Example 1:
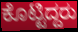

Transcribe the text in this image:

ಕೊಟ್ಟಿದ್ದರು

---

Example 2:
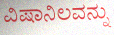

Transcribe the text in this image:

ವಿಷಾನಿಲವನ್ನು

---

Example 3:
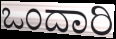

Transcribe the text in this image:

ಒಂದಾರಿ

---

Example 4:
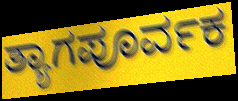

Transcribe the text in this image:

ತ್ಯಾಗಪೂರ್ವಕ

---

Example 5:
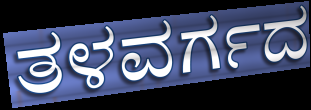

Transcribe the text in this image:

ತಳವರ್ಗದ